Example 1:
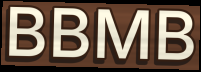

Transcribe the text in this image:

BBMB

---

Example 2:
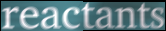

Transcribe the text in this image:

reactants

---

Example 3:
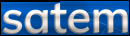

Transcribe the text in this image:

satem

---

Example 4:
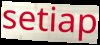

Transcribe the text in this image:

setiap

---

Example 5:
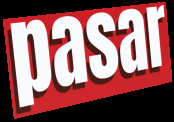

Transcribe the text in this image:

pasar